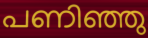
പണിഞ്ഞു